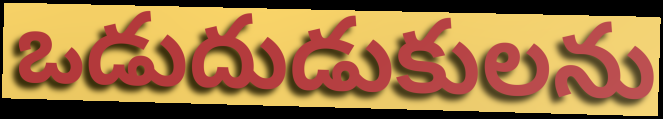
ఒడుదుడుకులను